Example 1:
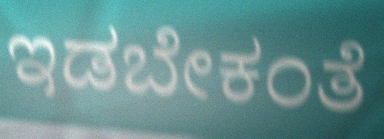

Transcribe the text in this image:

ಇಡಬೇಕಂತೆ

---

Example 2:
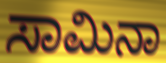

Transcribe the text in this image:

ಸಾಮಿನಾ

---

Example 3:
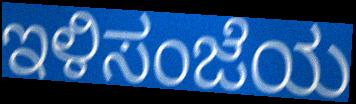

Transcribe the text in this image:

ಇಳಿಸಂಜೆಯ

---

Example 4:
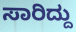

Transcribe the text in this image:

ಸಾರಿದ್ದು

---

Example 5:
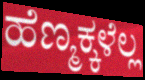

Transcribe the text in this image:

ಹೆಣ್ಮಕ್ಕಳೆಲ್ಲ